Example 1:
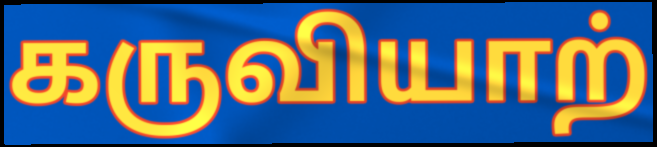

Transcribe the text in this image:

கருவியாற்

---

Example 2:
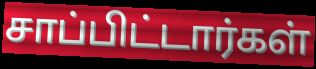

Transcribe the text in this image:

சாப்பிட்டார்கள்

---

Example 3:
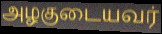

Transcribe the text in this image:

அழகுடையவர்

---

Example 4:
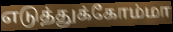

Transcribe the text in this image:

எடுத்துக்கோம்மா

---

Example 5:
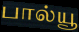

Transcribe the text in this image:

பால்யூ